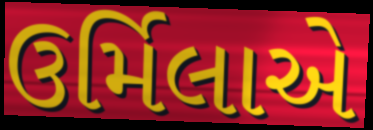
ઉર્મિલાએ